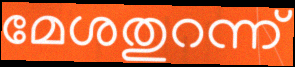
മേശതുറന്ന്